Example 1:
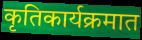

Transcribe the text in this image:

कृतिकार्यक्रमात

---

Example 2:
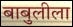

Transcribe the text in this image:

बाबुलीला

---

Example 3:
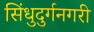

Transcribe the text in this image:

सिंधुदुर्गनगरी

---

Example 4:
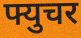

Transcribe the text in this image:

फ्युचर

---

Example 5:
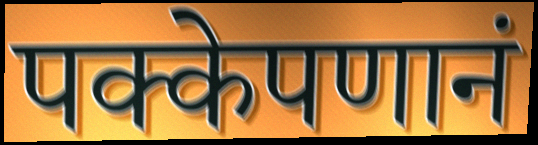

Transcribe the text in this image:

पक्केपणानं